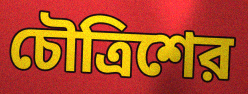
চৌত্রিশের